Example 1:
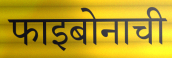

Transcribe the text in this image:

फाइबोनाची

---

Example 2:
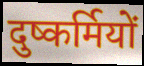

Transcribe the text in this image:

दुष्कर्मियों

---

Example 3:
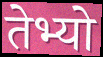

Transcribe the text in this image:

तेभ्यो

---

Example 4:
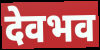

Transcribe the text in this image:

देवभव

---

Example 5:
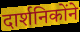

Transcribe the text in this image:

दार्शनिकोंने